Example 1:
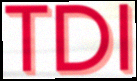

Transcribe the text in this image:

TDI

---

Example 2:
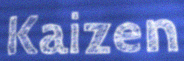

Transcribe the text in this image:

Kaizen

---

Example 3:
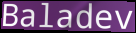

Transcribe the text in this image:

Baladev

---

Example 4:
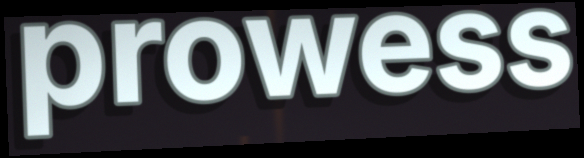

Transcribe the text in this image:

prowess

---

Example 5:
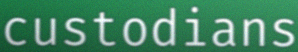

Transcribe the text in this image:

custodians